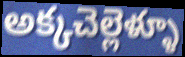
అక్కచెల్లెళ్ళూ